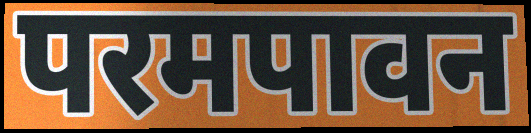
परमपावन